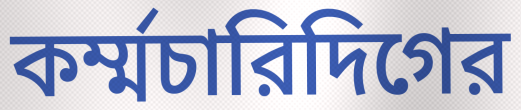
কর্ম্মচারিদিগের